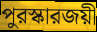
পুরস্কারজয়ী